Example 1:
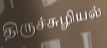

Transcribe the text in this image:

திருச்சுழியல்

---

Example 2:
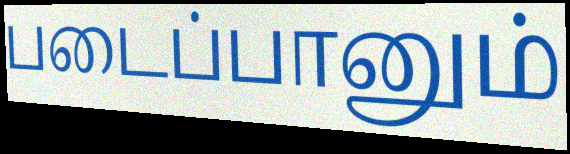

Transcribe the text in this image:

படைப்பானும்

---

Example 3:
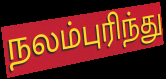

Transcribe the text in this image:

நலம்புரிந்து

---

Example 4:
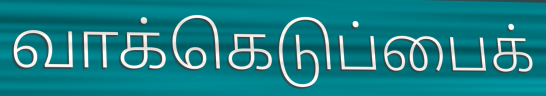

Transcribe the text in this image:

வாக்கெடுப்பைக்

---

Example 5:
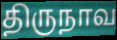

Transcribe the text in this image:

திருநாவ